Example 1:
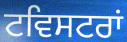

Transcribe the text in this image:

ਟਵਿਸਟਰਾਂ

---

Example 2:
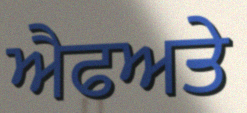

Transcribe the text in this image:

ਐਫਅਤੇ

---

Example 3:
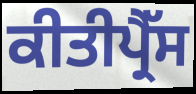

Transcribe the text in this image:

ਕੀਤੀਪ੍ਰੈੱਸ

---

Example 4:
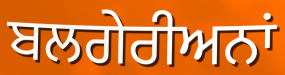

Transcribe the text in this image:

ਬਲਗੇਰੀਅਨਾਂ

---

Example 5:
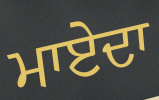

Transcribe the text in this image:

ਮਾਏਦਾ